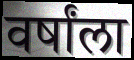
वर्षांला